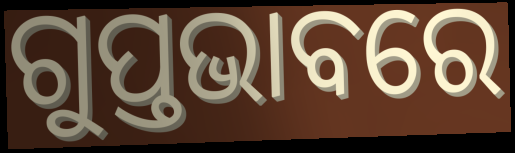
ଗୁପ୍ତଭାବରେ